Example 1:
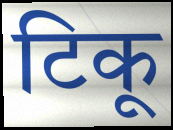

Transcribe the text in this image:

टिकू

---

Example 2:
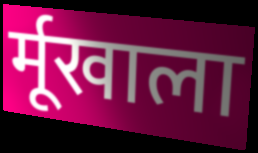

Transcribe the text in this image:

र्मूखाला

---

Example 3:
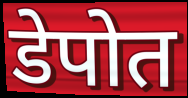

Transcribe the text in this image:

डेपोत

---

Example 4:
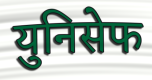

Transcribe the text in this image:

युनिसेफ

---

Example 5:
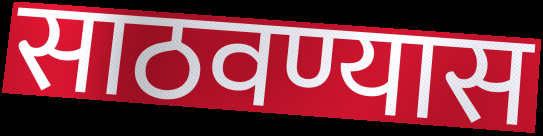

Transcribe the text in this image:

साठवण्यास